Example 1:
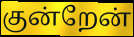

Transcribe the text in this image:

குன்றேன்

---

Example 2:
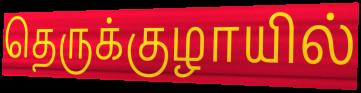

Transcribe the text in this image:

தெருக்குழாயில்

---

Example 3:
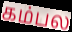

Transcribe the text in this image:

கம்பல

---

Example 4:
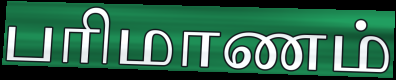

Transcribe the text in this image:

பரிமாணம்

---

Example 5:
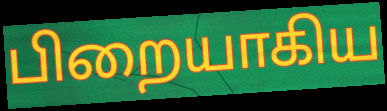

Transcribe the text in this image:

பிறையாகிய